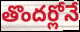
తొందర్లోనే